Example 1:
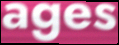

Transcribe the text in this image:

ages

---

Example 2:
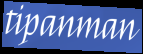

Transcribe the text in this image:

tipanman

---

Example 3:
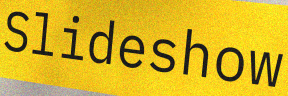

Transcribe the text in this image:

Slideshow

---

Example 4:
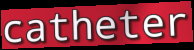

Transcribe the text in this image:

catheter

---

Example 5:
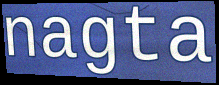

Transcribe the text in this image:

nagta